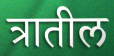
त्रातील